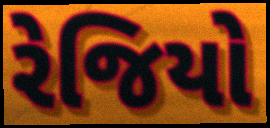
રેજિયો